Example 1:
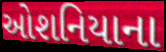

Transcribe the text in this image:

ઓશનિયાના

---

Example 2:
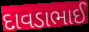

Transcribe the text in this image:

દાવડાભાઈ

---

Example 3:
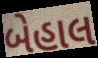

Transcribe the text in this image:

બેહાલ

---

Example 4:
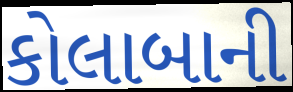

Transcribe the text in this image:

કોલાબાની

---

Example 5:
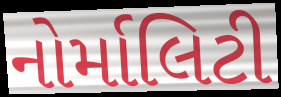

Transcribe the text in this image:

નોર્માલિટી